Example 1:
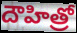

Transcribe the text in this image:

దౌహిత్రో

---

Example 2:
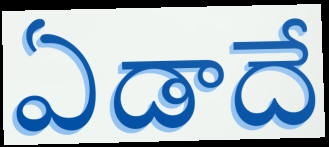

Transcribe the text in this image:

ఏడాదే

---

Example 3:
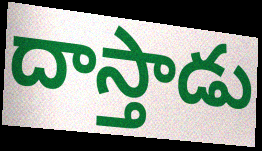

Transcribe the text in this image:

దాస్తాడు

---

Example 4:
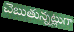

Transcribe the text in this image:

చెబుతున్నట్లుగా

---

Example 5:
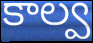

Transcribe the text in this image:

కాల్వ